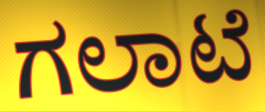
ಗಲಾಟೆ